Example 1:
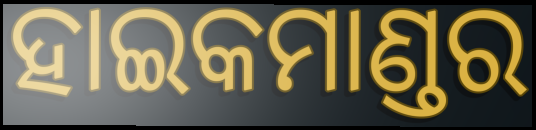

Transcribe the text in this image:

ହାଇକମାଣ୍ଡର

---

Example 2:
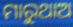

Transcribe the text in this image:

ମାରୁଥାଅ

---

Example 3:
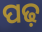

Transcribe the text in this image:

ପଢ଼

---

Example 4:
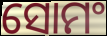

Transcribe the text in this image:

ସୋମଂ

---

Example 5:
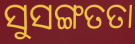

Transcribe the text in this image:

ସୁସଙ୍ଗତତା